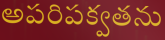
అపరిపక్వతను